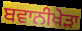
ਬਵਾਨੀਖੇੜਾ